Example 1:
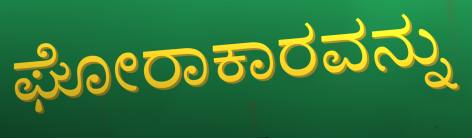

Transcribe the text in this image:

ಘೋರಾಕಾರವನ್ನು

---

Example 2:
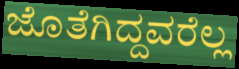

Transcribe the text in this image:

ಜೊತೆಗಿದ್ದವರೆಲ್ಲ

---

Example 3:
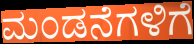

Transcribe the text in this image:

ಮಂಡನೆಗಳಿಗೆ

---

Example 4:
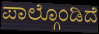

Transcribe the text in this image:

ಪಾಲ್ಗೊಂಡಿದೆ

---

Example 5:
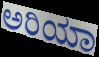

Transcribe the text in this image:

ಅರಿಯಾ